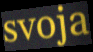
svoja